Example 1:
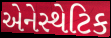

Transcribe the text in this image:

એનેસ્થેટિક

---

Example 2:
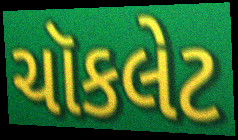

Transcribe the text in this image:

ચૉકલેટ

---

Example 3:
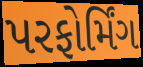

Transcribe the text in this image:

પરફોર્મિંગ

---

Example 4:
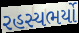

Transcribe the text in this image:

રહસ્યભર્યો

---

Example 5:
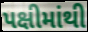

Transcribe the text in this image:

પક્ષીમાંથી